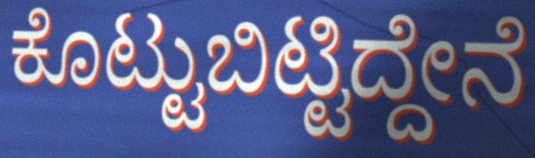
ಕೊಟ್ಟುಬಿಟ್ಟಿದ್ದೇನೆ